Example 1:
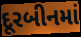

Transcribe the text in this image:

દૂરબીનમાં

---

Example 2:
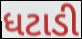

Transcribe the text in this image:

ધટાડી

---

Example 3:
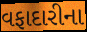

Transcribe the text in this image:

વફાદારીના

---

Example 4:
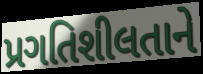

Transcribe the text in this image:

પ્રગતિશીલતાને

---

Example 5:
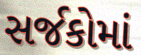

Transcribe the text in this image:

સર્જકોમાં